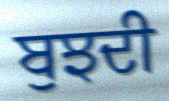
ਬੁਝਦੀ